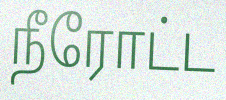
நீரோட்ட